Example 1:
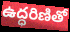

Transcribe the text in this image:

ఉద్ధరిణితో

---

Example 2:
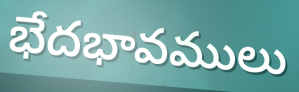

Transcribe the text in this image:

భేదభావములు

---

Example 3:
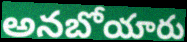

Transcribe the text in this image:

అనబోయారు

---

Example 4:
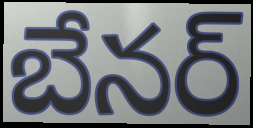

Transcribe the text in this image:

బేనర్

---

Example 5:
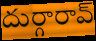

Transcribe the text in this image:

దుర్గారావ్